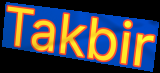
Takbir